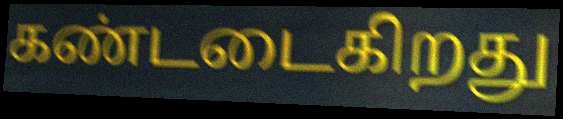
கண்டடைகிறது